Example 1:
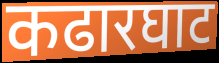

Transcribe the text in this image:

कढारघाट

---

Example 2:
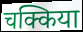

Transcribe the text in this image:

चक्किया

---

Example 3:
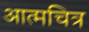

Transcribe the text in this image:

आत्मचित्र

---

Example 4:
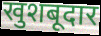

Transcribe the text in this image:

खुशबूदार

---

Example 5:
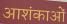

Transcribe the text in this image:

आशंकाओं